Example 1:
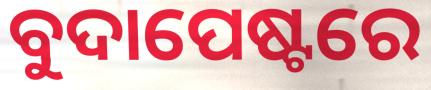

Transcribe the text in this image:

ବୁଦାପେଷ୍ଟରେ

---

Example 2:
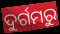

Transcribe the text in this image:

ଦୁର୍ଗମରୁ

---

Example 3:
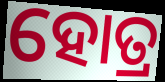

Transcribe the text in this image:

ହୋତ୍ର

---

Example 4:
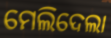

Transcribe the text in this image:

ମେଲିଦେଲା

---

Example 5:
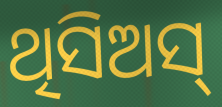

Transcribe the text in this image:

ଥିସିଅସ୍